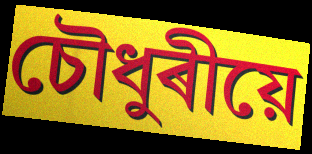
চৌধুৰীয়ে